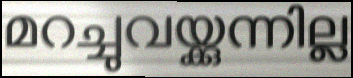
മറച്ചുവയ്ക്കുന്നില്ല